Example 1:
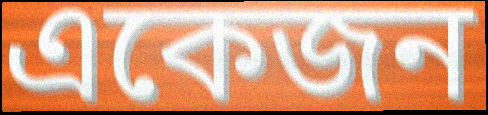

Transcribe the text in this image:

একেজন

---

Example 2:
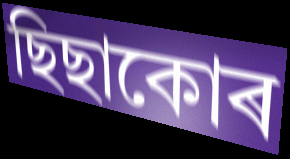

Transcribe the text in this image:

ছিছাকোৰ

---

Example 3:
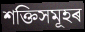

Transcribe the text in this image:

শক্তিসমূহৰ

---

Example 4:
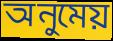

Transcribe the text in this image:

অনুমেয়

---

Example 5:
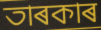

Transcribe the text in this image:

তাৰকাৰ